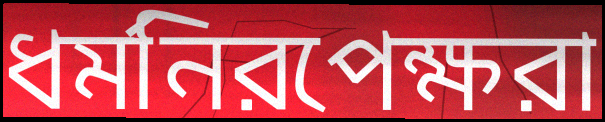
ধর্মনিরপেক্ষরা